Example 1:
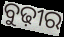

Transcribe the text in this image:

ବୁଢ଼ୀର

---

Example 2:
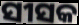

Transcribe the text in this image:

ସୀସକ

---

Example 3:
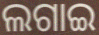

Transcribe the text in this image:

ଲଗାଇ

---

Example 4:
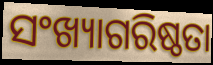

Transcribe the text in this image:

ସଂଖ୍ୟାଗରିଷ୍ଠତା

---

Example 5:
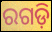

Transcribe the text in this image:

ରଗଡ଼ି